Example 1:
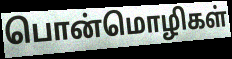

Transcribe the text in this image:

பொன்மொழிகள்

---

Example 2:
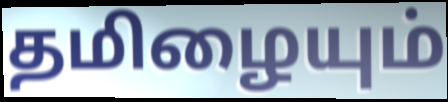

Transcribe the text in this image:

தமிழையும்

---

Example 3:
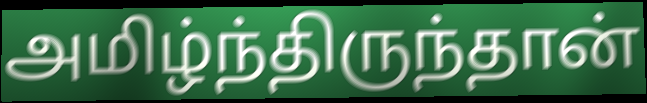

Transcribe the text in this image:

அமிழ்ந்திருந்தான்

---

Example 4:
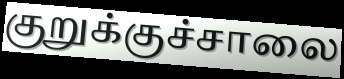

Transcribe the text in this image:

குறுக்குச்சாலை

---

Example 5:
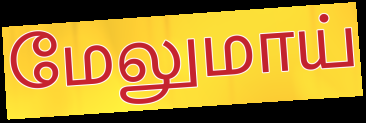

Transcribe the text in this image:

மேலுமாய்